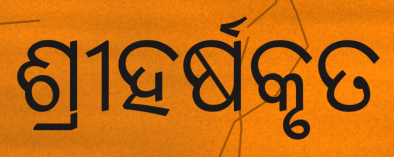
ଶ୍ରୀହର୍ଷକୃତ